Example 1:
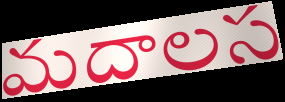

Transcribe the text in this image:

మదాలస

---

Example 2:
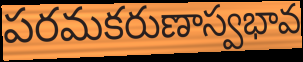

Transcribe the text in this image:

పరమకరుణాస్వభావ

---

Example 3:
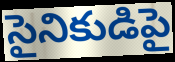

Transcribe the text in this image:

సైనికుడిపై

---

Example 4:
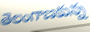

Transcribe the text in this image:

తెలంగాణకున్న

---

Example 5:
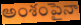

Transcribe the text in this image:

అంశంపైనా